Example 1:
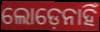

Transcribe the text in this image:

ଲୋଡ଼େନାହିଁ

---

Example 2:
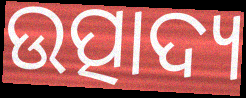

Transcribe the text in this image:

ଉତ୍ପାଦ୍ୟ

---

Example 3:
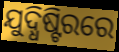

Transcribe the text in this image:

ଯୁଦ୍ଧିଷ୍ଟିରରେ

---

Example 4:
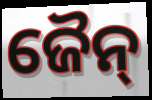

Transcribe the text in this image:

ଜୈନ୍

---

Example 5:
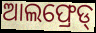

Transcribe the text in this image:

ଆଲଫ୍ରେଡ୍